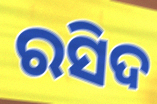
ରସିଦ